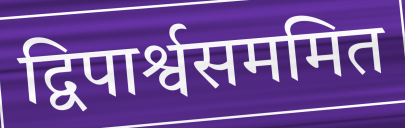
द्विपार्श्वसममित